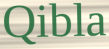
Qibla